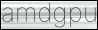
amdgpu